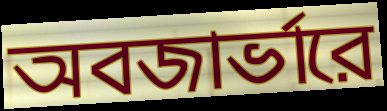
অবজার্ভারে